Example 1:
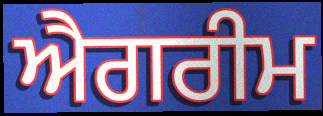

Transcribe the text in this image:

ਐਗਰੀਮ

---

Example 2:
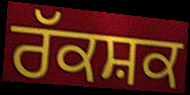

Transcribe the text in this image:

ਰੱਕਸ਼ਕ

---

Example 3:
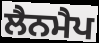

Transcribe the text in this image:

ਲੈਨਮੈਪ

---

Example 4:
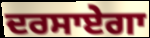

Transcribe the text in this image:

ਦਰਸਾਏਗਾ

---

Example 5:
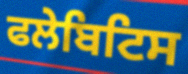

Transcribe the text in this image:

ਫਲੇਬਿਟਿਸ